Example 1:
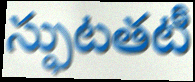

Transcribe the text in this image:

స్ఫుటతటీ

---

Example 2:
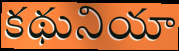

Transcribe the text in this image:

కథునియా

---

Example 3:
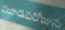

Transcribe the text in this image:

మూడవరోజున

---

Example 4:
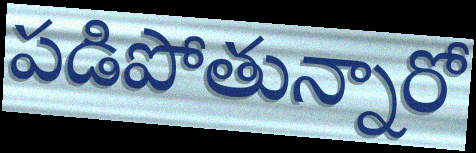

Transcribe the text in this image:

పడిపోతున్నారో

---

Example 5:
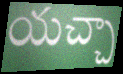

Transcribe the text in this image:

యచ్చా